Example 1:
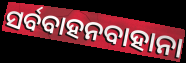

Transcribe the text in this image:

ସର୍ବବାହନବାହାନା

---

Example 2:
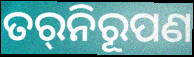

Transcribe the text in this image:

ତର୍‌ନିରୂପଣ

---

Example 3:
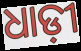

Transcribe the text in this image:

ଧାଡ଼ୀ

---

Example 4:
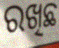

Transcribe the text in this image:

ରଖିଛ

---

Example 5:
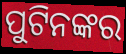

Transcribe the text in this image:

ପୁଟିନଙ୍କର